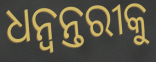
ଧନ୍ବନ୍ତରୀକୁ